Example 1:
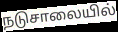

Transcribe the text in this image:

நடுசாலையில்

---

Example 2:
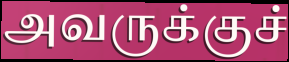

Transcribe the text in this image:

அவருக்குச்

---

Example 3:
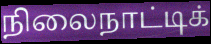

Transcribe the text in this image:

நிலைநாட்டிக்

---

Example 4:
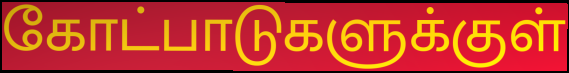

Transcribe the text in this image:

கோட்பாடுகளுக்குள்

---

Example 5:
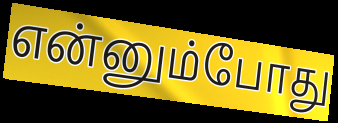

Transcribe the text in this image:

என்னும்போது